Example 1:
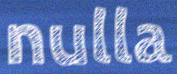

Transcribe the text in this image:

nulla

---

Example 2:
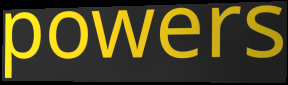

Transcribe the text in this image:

powers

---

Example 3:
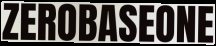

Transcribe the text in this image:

ZEROBASEONE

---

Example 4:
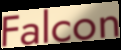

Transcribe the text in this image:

Falcon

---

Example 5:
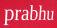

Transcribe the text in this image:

prabhu